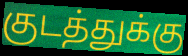
குடத்துக்கு